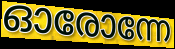
ഓരോന്നേ